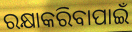
ରକ୍ଷାକରିବାପାଇଁ